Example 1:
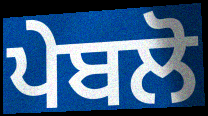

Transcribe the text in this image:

ਪੇਬਲੋ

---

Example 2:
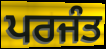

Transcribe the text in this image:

ਪਰਜੰਤ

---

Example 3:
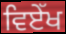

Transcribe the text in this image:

ਵਿਏੱਖ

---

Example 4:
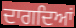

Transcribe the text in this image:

ਦਾਗਦਿਆਂ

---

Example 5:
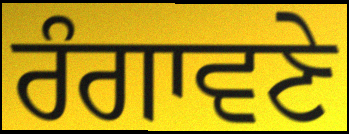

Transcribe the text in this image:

ਰੰਗਾਵਣੇ